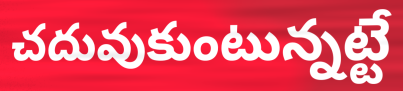
చదువుకుంటున్నట్టే